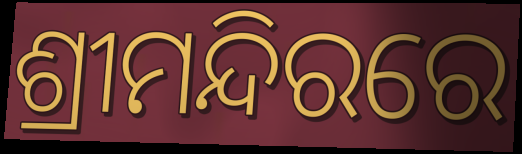
ଶ୍ରୀମନ୍ଦିରରେ